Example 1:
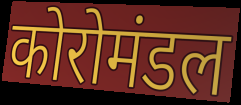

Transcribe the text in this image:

कोरोमंडल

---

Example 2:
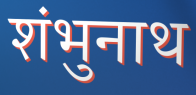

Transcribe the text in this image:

शंभुनाथ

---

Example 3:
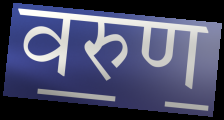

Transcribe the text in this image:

व॒रु॒ण॒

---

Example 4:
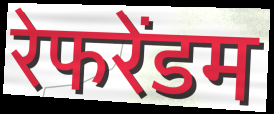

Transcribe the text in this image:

रेफरेंडम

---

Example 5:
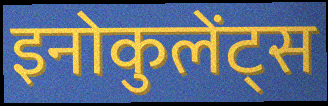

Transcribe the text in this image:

इनोकुलेंट्स